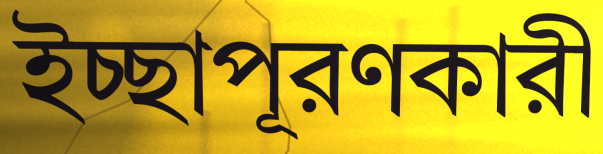
ইচ্ছাপূরণকারী